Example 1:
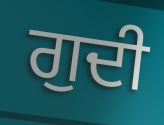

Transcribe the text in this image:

ਗੁਦੀ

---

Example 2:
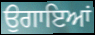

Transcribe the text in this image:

ਉਗਾਇਆਂ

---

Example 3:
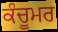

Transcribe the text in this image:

ਕੰਚੂਮਰ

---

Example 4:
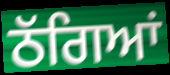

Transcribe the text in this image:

ਠੱਗਿਆਂ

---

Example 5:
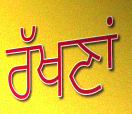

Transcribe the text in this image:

ਰੱਖਣਾਂ